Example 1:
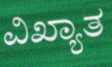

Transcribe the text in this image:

ವಿಖ್ಯಾತ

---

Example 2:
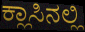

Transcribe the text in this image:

ಕ್ಲಾಸಿನಲ್ಲಿ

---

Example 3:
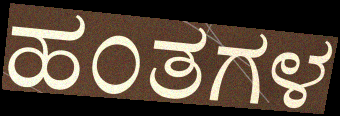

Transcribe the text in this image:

ಹಂತಗಳ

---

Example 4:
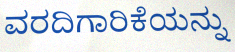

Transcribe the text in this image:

ವರದಿಗಾರಿಕೆಯನ್ನು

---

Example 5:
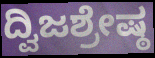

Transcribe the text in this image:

ದ್ವಿಜಶ್ರೇಷ್ಠ